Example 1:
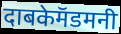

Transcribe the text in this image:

दाबकेमॅडमनी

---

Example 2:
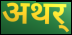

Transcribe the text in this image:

अथर्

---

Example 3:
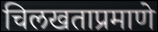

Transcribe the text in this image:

चिलखताप्रमाणे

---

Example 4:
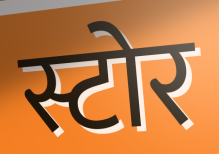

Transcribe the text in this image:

स्टोर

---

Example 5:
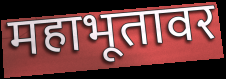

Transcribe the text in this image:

महाभूतावर